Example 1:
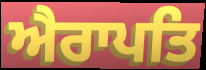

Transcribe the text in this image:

ਐਰਾਪਤਿ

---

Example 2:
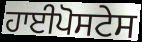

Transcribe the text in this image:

ਹਾਈਪੋਸਟੇਸ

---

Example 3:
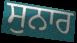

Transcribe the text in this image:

ਸੁਨਾਰ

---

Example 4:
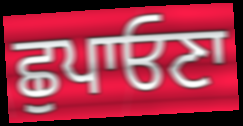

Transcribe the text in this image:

ਛੁਪਾਓਣਾ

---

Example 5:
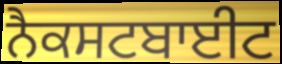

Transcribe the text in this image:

ਨੈਕਸਟਬਾਈਟ